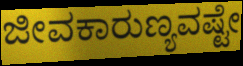
ಜೀವಕಾರುಣ್ಯವಷ್ಟೇ